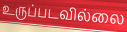
உருப்படவில்லை